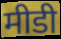
मीडी